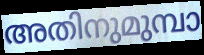
അതിനുമുമ്പാ